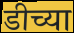
डीच्या